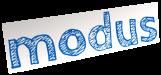
modus